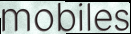
mobiles